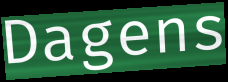
Dagens